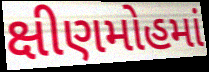
ક્ષીણમોહમાં